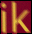
ik